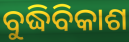
ବୁଦ୍ଧିବିକାଶ